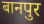
बानपुर